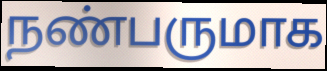
நண்பருமாக